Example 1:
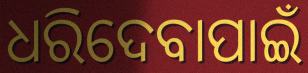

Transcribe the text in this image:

ଧରିଦେବାପାଇଁ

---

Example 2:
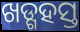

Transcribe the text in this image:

ଖଡ୍ଗହସ୍ତ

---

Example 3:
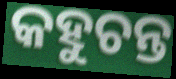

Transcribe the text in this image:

କହୁଚନ୍ତ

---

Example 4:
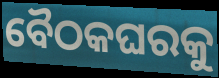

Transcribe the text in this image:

ବୈଠକଘରକୁ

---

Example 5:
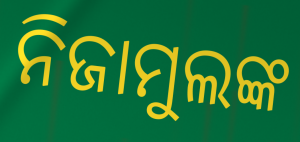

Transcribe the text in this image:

ନିଜାମୁଲଙ୍କ